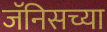
जॅनिसच्या